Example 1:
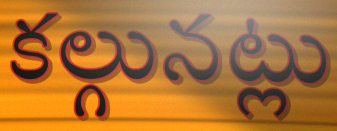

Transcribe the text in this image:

కల్గునట్లు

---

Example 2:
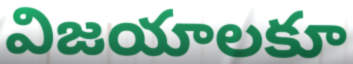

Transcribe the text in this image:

విజయాలకూ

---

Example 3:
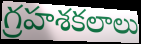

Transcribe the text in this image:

గ్రహశకలాలు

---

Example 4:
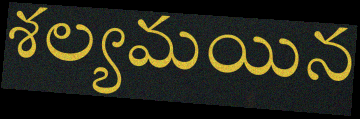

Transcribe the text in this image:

శల్యమయిన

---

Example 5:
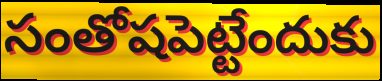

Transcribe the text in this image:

సంతోషపెట్టేందుకు